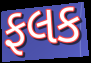
ફલક